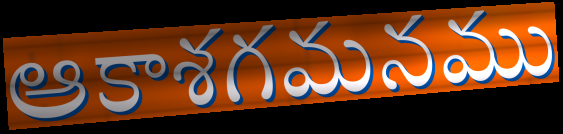
ఆకాశగమనము